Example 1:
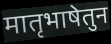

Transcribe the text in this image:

मातृभाषेतुन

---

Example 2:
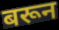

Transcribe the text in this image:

बरून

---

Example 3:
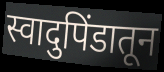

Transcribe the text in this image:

स्वादुपिंडातून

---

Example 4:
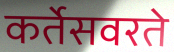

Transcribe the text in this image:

कर्तेसवरते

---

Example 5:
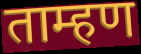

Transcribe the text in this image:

ताम्हण